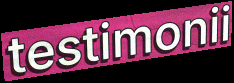
testimonii